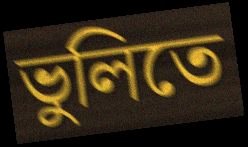
ভুলিতে